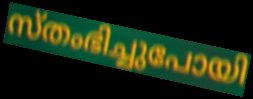
സ്തംഭിച്ചുപോയി